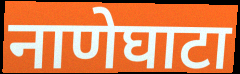
नाणेघाटा